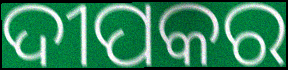
ଦୀପକର